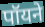
पॉयने